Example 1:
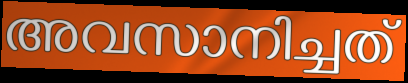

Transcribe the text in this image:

അവസാനിച്ചത്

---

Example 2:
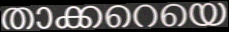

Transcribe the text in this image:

താക്കറെയെ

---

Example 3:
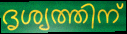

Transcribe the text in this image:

ദൃശ്യത്തിന്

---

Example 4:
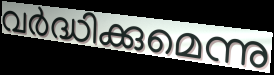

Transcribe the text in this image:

വർദ്ധിക്കുമെന്നു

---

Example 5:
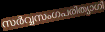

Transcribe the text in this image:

സർവ്വസംഗപരിത്യാഗി